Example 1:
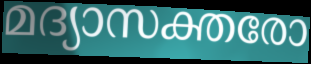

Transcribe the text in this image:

മദ്യാസക്തരോ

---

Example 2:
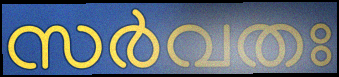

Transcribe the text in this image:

സർവതഃ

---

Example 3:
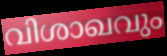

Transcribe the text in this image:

വിശാഖവും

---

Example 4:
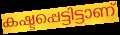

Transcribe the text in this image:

കഷ്ടപ്പെട്ടിട്ടാണ്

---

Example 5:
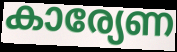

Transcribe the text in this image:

കാര്യേണ